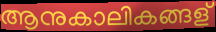
ആനുകാലികങ്ങള്